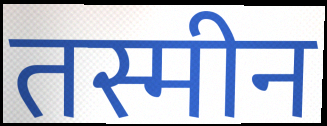
तस्मीन